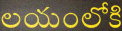
లయంలోకి